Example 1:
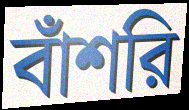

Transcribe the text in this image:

বাঁশরি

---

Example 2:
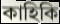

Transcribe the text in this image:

কাহিকি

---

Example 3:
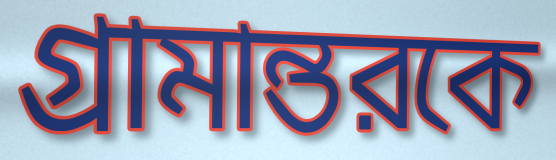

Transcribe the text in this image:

গ্রামান্তরকে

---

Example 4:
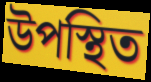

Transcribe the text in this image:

উপস্থিত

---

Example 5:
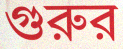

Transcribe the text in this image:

গুরুর